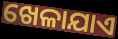
ଖେଳାଯାଏ